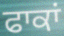
ਫਾਕਾਂ